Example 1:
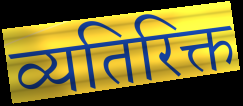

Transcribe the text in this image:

व्यतिरिक्त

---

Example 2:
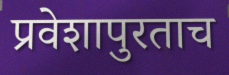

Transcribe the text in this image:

प्रवेशापुरताच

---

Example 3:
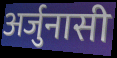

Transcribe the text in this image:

अर्जुनासी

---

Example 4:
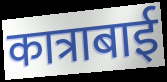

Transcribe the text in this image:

कात्राबाई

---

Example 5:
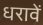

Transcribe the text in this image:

धरावें